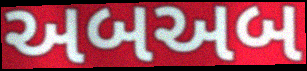
અબઅબ